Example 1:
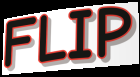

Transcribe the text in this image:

FLIP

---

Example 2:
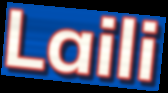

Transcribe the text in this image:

Laili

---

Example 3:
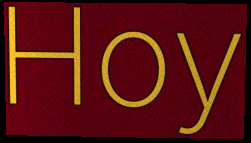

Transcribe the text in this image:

Hoy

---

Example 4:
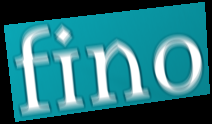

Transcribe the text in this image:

fino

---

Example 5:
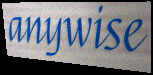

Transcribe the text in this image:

anywise